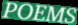
POEMS